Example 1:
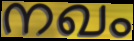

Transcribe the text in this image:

നഖം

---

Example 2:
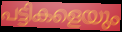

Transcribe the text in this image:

പട്ടികളെയും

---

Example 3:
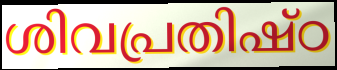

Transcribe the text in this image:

ശിവപ്രതിഷ്ഠ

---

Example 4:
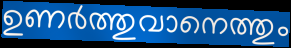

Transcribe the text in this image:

ഉണർത്തുവാനെത്തും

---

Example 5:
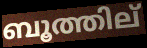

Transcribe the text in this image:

ബൂത്തില്